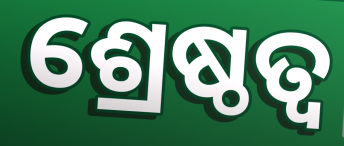
ଶ୍ରେଷ୍ଠତ୍ବ